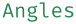
Angles